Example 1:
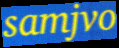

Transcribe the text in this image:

samjvo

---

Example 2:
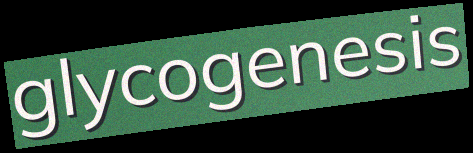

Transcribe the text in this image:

glycogenesis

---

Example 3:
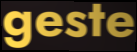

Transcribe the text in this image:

geste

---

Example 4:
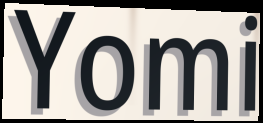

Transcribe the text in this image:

Yomi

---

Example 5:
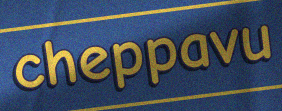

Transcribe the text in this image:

cheppavu